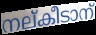
നല്കീടാന്